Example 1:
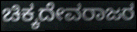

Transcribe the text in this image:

ಚಿಕ್ಕದೇವರಾಜರ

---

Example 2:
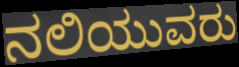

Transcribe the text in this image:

ನಲಿಯುವರು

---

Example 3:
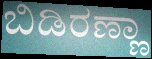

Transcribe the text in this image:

ಬಿಡಿರಣ್ಣಾ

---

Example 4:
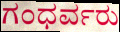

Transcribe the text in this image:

ಗಂಧರ್ವರು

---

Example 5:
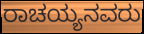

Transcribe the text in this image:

ರಾಚಯ್ಯನವರು